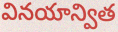
వినయాన్విత